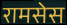
रामसेस